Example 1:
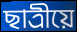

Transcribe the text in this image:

ছাত্ৰীয়ে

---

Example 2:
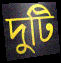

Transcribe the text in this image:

দুটি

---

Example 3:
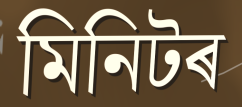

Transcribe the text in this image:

মিনিটৰ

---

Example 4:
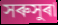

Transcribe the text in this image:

সৰুসুৰা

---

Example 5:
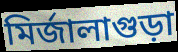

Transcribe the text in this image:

মিৰ্জালাগুড়া